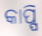
କାପ୍ପି